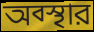
অব্স্থার